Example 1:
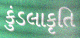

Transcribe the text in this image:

કુંડલાકૃતિ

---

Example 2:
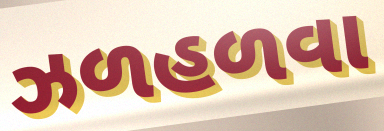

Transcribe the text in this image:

ઝળહળવા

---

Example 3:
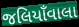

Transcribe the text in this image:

જલિયાઁવાલા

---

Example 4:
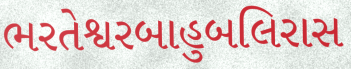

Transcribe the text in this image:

ભરતેશ્વરબાહુબલિરાસ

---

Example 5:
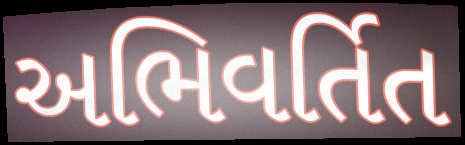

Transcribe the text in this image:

અભિવર્તિત